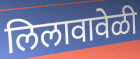
लिलावावेळी